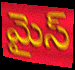
మైస్